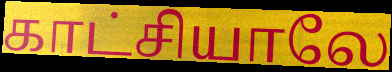
காட்சியாலே